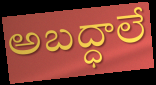
అబద్ధాలే